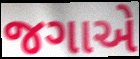
જગાએ